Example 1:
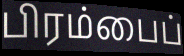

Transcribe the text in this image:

பிரம்பைப்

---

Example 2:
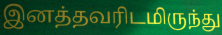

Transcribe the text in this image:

இனத்தவரிடமிருந்து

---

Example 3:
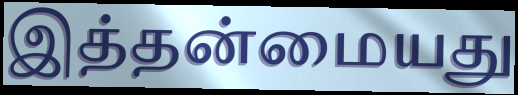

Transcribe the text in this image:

இத்தன்மையது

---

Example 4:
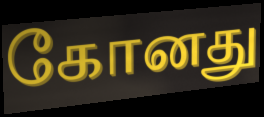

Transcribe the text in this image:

கோனது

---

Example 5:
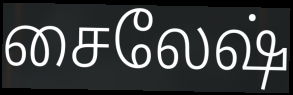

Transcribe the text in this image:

சைலேஷ்